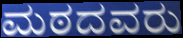
ಮಠದವರು